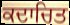
ਕਦਾਚਿਤ